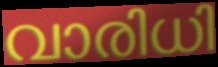
വാരിധി